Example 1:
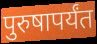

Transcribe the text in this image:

पुरुषापर्यंत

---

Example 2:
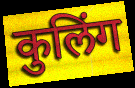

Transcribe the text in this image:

कुलिंग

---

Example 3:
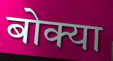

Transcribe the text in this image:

बोक्या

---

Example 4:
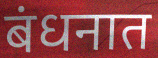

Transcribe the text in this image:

बंधनात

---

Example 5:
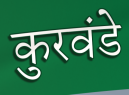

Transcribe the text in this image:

कुरवंडे